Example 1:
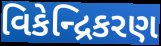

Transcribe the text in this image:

વિકેન્દ્રિકરણ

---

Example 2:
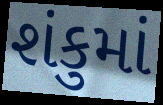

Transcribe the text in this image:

શંકુમાં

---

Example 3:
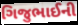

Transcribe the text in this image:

ગિજુભાઈની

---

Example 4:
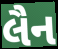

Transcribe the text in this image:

લૈન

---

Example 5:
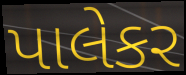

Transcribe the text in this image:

પાલેકર